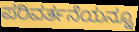
ಪರಿವರ್ತನೆಯನ್ನೂ